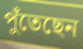
পুঁতেছেন